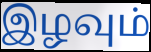
இழவும்